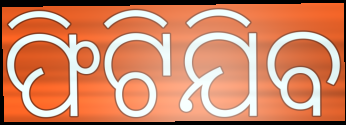
ଫିଟିଯିବ